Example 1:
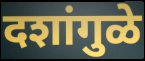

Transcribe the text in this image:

दशांगुळे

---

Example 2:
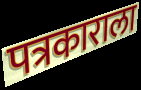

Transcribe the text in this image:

पत्रकाराला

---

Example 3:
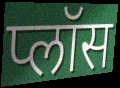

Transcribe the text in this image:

प्लॉस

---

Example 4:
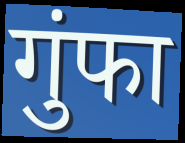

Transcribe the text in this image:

गुंफा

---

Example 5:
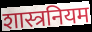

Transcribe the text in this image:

शास्त्रनियम